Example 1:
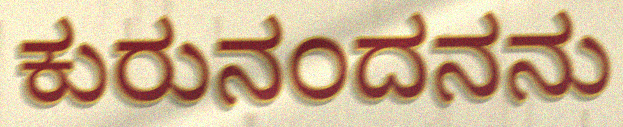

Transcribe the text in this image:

ಕುರುನಂದನನು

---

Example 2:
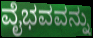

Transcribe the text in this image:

ವೈಭವವನ್ನು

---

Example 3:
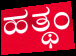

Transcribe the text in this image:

ಹತ್ಥಂ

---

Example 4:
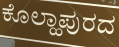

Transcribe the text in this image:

ಕೊಲ್ಹಾಪುರದ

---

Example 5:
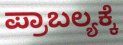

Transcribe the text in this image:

ಪ್ರಾಬಲ್ಯಕ್ಕೆ